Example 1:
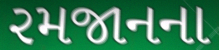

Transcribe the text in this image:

રમજાનના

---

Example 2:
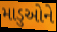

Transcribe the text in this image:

માડુઓને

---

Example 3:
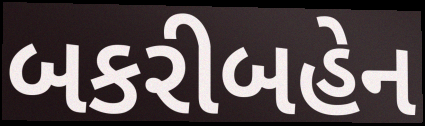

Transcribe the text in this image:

બકરીબહેન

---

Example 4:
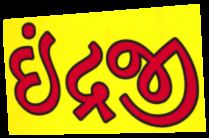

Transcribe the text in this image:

ઇંદ્રજી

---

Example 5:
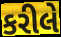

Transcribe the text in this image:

કરીલે